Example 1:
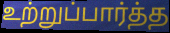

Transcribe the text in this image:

உற்றுப்பார்த்த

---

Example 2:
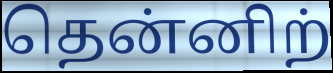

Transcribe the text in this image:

தென்னிற்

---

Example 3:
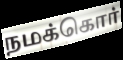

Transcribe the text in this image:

நமக்கொர்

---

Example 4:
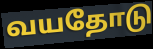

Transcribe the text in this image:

வயதோடு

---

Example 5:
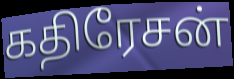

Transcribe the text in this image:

கதிரேசன்